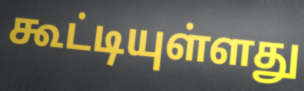
கூட்டியுள்ளது